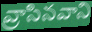
వ్రాసినవాని